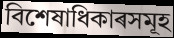
বিশেষাধিকাৰসমূহ